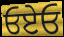
ਓਏਓ